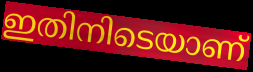
ഇതിനിടെയാണ്